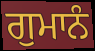
ਗੁਮਾਨੰ